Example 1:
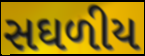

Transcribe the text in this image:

સઘળીય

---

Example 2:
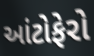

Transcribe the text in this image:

આંટોફેરો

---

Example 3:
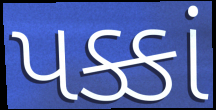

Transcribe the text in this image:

પક્કાં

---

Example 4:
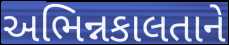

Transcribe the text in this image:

અભિન્નકાલતાને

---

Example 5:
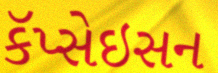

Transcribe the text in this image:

કૅપ્સેઇસન